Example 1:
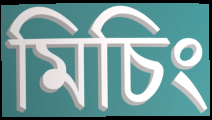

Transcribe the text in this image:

মিচিং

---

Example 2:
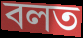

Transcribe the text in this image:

বলত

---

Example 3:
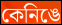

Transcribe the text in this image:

কেনিঙে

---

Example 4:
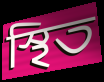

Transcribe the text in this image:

স্থিত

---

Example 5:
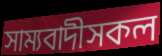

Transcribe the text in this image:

সাম্যবাদীসকল